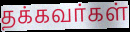
தக்கவர்கள்